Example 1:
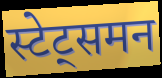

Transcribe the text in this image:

स्टेट्समन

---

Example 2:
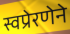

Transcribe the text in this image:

स्वप्रेरणेने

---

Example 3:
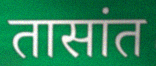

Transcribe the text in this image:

तासांत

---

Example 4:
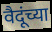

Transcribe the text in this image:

वैदूंच्या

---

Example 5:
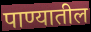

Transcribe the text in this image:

पाण्यातील